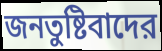
জনতুষ্টিবাদের